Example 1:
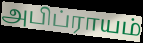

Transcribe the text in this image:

அபிப்ராயம்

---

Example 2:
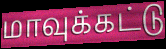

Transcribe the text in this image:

மாவுக்கட்டு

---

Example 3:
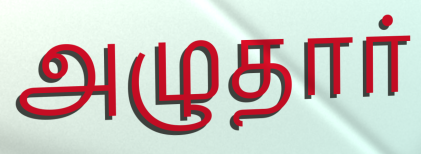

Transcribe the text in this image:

அழுதார்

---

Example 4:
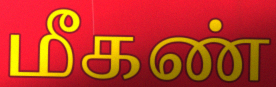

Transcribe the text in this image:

மீகண்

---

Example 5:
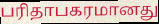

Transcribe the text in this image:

பரிதாபகரமானது